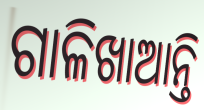
ଗାଳିଖାଆନ୍ତି